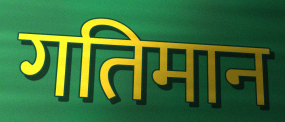
गतिमान